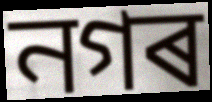
নগৰ